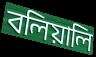
বলিয়ালি